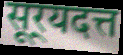
सूर्यदत्त